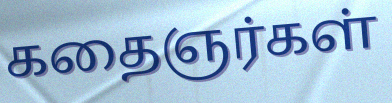
கதைஞர்கள்